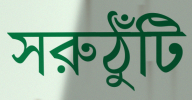
সরুঠুঁটি